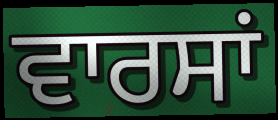
ਵਾਰਸਾਂ